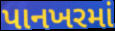
પાનખરમાં